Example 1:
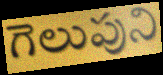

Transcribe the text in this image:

గెలుపుని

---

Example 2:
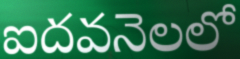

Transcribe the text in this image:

ఐదవనెలలో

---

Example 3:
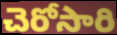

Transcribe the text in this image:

చెరోసారి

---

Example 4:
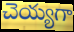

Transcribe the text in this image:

చెయ్యగా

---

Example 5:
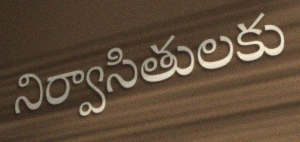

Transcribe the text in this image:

నిర్వాసితులకు